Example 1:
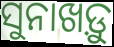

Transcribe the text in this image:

ସୁନାଖଡ଼ୁ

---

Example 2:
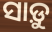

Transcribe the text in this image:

ସାଡ଼ୁ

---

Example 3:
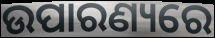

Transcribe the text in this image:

ଉପାରଣ୍ୟରେ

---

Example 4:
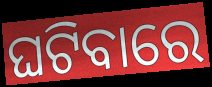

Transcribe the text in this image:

ଘଟିବାରେ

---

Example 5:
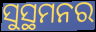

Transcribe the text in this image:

ସୁସ୍ଥମନର